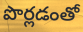
పొర్లడంతో